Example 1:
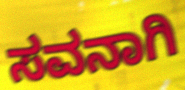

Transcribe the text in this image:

ಸವನಾಗಿ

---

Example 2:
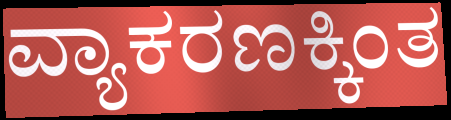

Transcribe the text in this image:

ವ್ಯಾಕರಣಕ್ಕಿಂತ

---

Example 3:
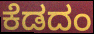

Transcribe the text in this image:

ಕೆಡದಂ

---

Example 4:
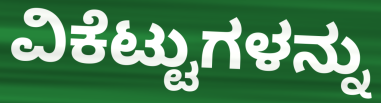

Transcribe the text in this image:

ವಿಕೆಟ್ಟುಗಳನ್ನು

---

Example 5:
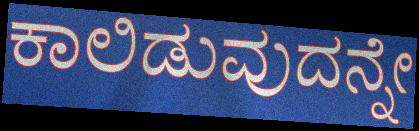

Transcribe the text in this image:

ಕಾಲಿಡುವುದನ್ನೇ